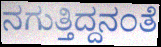
ನಗುತ್ತಿದ್ದನಂತೆ